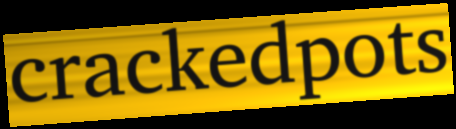
crackedpots